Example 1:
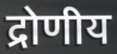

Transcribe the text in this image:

द्रोणीय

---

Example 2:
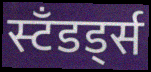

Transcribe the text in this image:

स्टँडर्ड्स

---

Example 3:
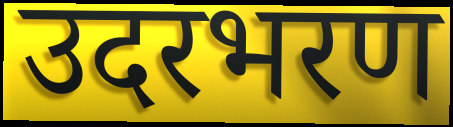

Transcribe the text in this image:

उदरभरण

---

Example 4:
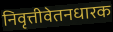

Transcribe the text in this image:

निवृत्तीवेतनधारक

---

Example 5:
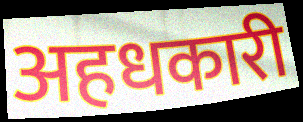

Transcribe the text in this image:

अहधकारी